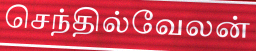
செந்தில்வேலன்